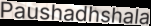
Paushadhshala